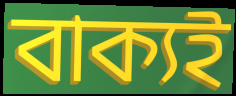
বাক্যই